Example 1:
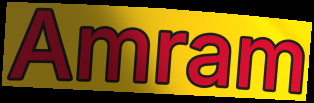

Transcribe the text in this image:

Amram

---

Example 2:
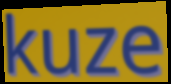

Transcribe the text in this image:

kuze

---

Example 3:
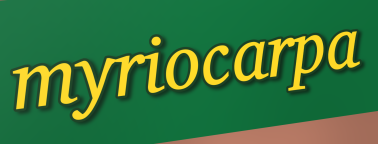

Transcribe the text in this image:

myriocarpa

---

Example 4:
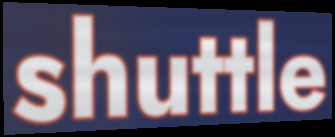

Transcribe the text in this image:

shuttle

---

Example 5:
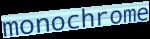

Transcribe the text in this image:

monochrome